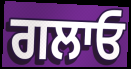
ਗਲਾਓ